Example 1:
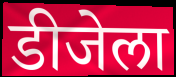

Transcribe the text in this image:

डीजेला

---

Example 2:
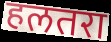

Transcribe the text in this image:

हलतरा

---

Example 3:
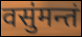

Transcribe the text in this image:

वसु॑मन्तं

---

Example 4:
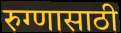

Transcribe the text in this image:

रुग्णासाठी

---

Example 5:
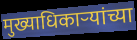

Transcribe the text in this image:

मुख्याधिकाऱ्यांच्या